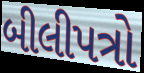
બીલીપત્રો